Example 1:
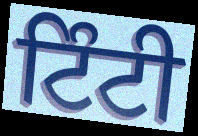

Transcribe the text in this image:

ਟਿੰਟੀ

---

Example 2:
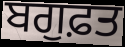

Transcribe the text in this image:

ਬਗੁਫ਼ਤ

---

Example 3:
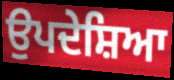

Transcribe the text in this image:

ਉਪਦੇਸ਼ਿਆ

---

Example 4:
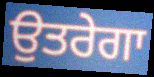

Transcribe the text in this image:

ਉਤਰੇਗਾ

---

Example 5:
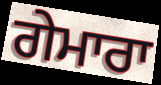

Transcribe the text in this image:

ਗੇਮਾਰਾ